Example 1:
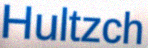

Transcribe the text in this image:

Hultzch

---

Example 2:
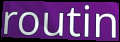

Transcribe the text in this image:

routin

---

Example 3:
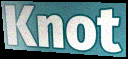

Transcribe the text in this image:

Knot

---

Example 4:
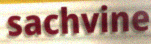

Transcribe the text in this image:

sachvine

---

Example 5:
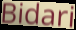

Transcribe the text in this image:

Bidari